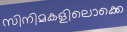
സിനിമകളിലൊക്കെ